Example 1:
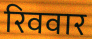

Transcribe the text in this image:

रिववार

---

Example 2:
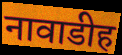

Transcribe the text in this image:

नावाडीह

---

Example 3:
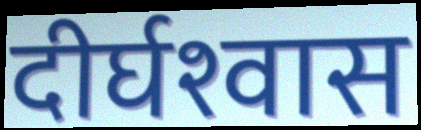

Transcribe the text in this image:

दीर्घश्वास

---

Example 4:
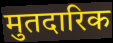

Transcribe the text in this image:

मुतदारिक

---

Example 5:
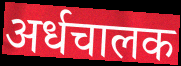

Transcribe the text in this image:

अर्धचालक